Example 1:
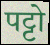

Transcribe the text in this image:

पट्टो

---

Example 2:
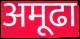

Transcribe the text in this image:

अमूढा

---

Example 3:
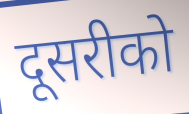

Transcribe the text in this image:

दूसरीको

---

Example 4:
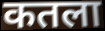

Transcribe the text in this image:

कतला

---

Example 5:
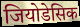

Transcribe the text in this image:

जियोडेसिक